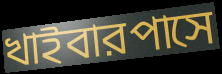
খাইবারপাসে